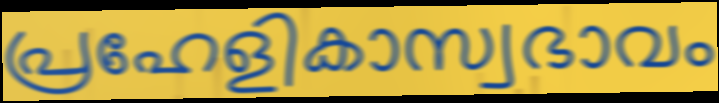
പ്രഹേളികാസ്വഭാവം